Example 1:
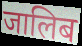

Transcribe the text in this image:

जालिब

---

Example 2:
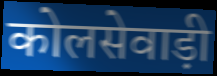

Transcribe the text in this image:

कोलसेवाड़ी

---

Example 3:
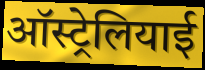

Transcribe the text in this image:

ऑस्‍ट्रेलियाई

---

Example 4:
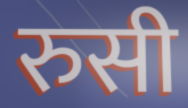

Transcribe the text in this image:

रुसी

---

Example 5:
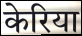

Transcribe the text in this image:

केरिया